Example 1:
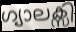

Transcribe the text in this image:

ഗ്യാലക്സി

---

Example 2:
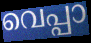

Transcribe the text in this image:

വെപ്പാ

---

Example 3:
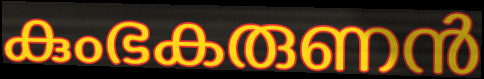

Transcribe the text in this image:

കുംഭകരുണൻ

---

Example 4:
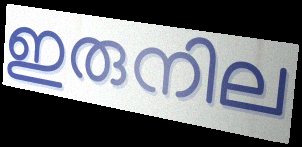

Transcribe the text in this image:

ഇരുനില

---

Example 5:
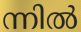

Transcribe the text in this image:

ന്നിൽ